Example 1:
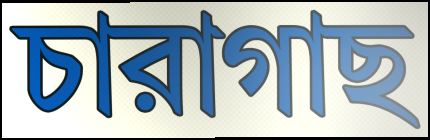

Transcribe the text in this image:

চারাগাছ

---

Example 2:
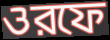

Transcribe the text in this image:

ওরফে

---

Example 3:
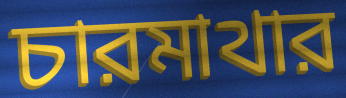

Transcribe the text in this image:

চারমাথার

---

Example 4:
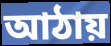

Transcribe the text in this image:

আঠায়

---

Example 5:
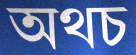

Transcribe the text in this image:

অথচ